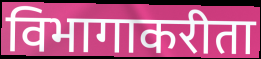
विभागाकरीता